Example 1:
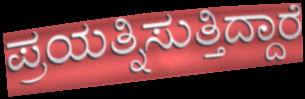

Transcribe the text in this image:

ಪ್ರಯತ್ನಿಸುತ್ತಿದ್ದಾರೆ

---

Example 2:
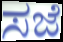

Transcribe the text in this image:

ಸಜೆ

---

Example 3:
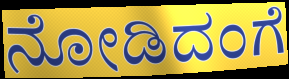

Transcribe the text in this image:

ನೋಡಿದಂಗೆ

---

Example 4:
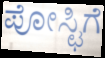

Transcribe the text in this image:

ಪೋಸ್ಟಿಗೆ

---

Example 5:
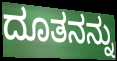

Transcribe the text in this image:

ದೂತನನ್ನು